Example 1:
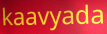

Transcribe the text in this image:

kaavyada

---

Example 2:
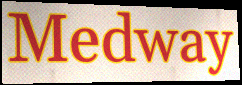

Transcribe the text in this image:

Medway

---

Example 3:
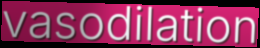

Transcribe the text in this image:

vasodilation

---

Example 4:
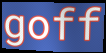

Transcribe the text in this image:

goff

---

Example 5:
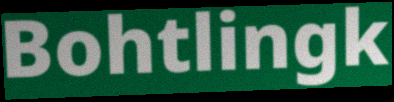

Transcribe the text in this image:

Bohtlingk